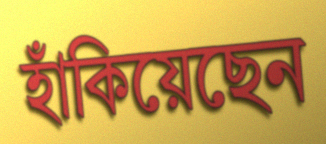
হাঁকিয়েছেন